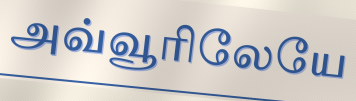
அவ்வூரிலேயே